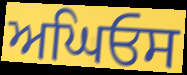
ਅਘਿਓਸ